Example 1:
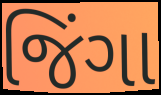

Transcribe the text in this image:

જિંગા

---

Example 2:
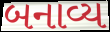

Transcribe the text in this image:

બનાવ્ય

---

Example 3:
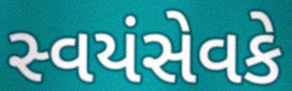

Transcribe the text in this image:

સ્વયંસેવકે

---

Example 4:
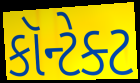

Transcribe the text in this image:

કૉન્ટેક્ટ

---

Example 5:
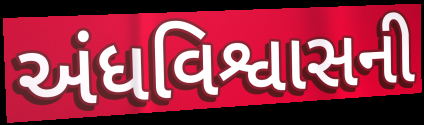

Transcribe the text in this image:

અંધવિશ્વાસની